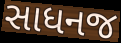
સાધનજ